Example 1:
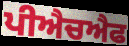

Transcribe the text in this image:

ਪੀਐਚਐਫ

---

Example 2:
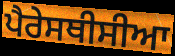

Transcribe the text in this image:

ਪੈਰੇਸਥੀਸੀਆ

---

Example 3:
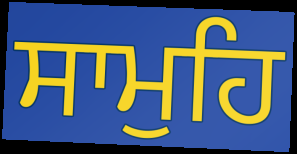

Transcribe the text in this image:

ਸਾਮੁਹਿ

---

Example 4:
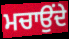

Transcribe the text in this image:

ਮਚਾਉਂਦੇ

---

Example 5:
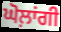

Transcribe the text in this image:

ਘੋਲ਼ਾਂਗੀ